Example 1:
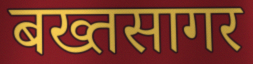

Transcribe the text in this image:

बख्तसागर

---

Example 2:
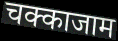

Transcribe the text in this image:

चक्काजाम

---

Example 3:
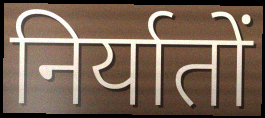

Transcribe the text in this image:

निर्यातों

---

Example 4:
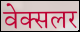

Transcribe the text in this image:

वेक्सलर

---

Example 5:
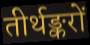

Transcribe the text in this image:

तीर्थङ्करों